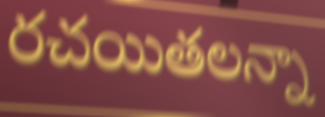
రచయితలన్నా